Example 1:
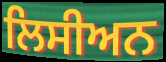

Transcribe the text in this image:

ਲਿਸੀਅਨ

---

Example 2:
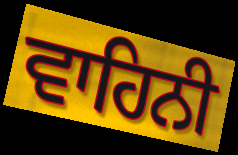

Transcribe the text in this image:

ਵਾਹਿਨੀ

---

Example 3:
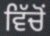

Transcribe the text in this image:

ਵਿੱਚੋੰ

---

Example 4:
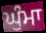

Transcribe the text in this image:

ਘੁੰਮਾ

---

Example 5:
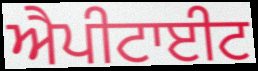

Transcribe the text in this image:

ਐਪੀਟਾਈਟ